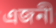
এজনী